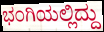
ಭಂಗಿಯಲ್ಲಿದ್ದು